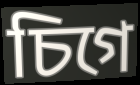
চিগে